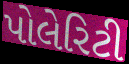
પોલેરિટી